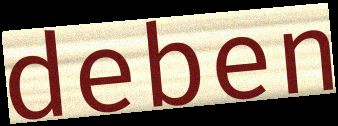
deben